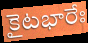
కైటభారేః